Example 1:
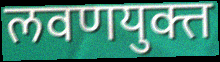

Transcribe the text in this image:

लवणयुक्त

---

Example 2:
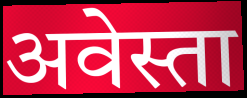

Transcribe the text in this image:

अवेस्ता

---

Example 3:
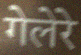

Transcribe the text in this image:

गेलेरे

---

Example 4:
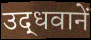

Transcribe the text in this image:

उद्धवानें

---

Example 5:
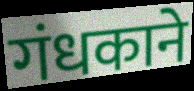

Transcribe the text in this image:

गंधकाने